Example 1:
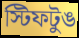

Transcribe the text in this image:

স্টিফটুঙ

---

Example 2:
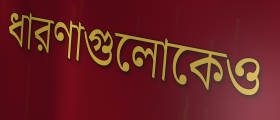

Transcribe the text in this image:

ধারণাগুলোকেও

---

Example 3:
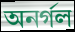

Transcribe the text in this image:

অনর্গল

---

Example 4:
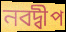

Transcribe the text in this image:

নবদ্বীপ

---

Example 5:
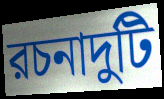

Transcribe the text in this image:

রচনাদুটি